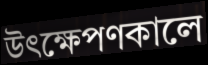
উৎক্ষেপণকালে